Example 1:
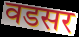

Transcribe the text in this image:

वडसर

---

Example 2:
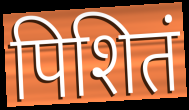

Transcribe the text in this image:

पिशितं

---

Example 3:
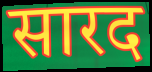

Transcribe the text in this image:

सारद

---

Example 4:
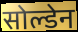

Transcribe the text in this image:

सोल्डेन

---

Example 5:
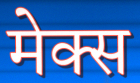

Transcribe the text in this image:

मेक्स